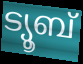
ട്യൂബ്